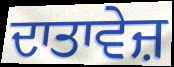
ਦਾਤਾਵੇਜ਼